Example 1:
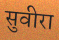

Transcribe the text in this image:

सुवीरा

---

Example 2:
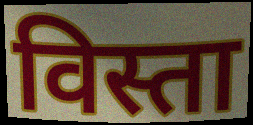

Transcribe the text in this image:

विस्ता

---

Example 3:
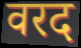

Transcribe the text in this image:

वरद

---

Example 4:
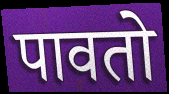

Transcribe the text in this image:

पावतो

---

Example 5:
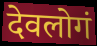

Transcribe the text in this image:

देवलोगं